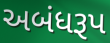
અબંધરૂપ